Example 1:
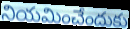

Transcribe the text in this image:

నియమించేందుకు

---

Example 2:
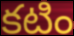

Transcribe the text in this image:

కటిం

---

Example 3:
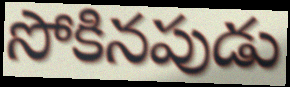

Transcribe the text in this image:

సోకినపుడు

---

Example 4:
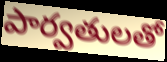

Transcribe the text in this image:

పార్వతులతో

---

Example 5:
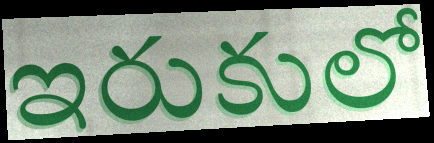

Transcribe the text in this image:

ఇరుకులో